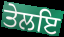
ਤੇਲਇ